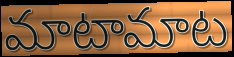
మాటామాట